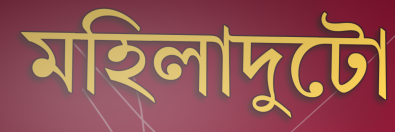
মহিলাদুটো